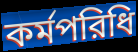
কর্মপরিধি